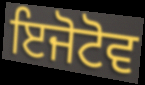
ਇਜੋਟੋਵ